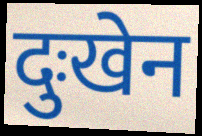
दुःखेन